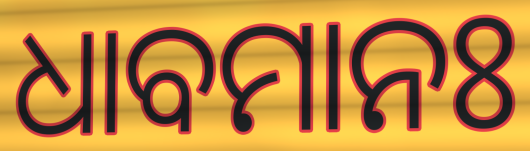
ଧାବମାନଃ